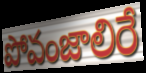
పోవంజాలిరే